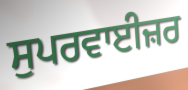
ਸੁਪਰਵਾਈਜ਼ਰ